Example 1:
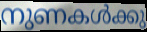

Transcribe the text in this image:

നുണകൾക്കു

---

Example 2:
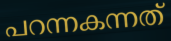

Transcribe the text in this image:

പറന്നകന്നത്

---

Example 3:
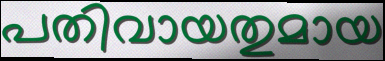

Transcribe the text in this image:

പതിവായതുമായ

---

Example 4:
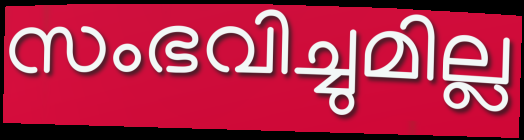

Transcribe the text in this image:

സംഭവിച്ചുമില്ല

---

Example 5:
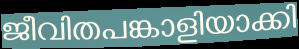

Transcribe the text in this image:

ജീവിതപങ്കാളിയാക്കി